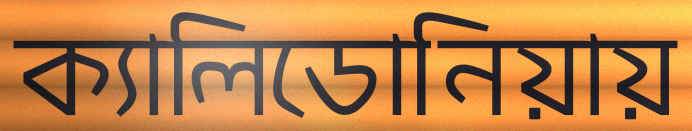
ক্যালিডোনিয়ায়